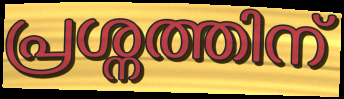
പ്രശ്നത്തിന്